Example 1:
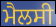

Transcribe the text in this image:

ਮੈਲਸੀ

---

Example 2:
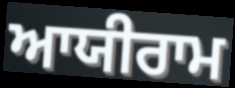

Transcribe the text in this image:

ਆਯੀਰਾਮ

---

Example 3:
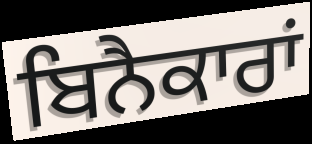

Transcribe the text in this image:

ਬਿਨੈਕਾਰਾਂ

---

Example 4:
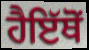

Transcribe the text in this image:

ਹੈਇੱਥੋਂ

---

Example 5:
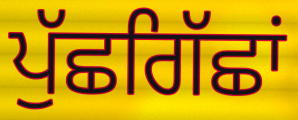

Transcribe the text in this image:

ਪੁੱਛਗਿੱਛਾਂ